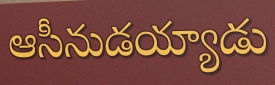
ఆసీనుడయ్యాడు